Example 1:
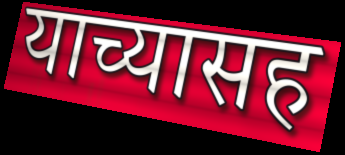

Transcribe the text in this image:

याच्यासह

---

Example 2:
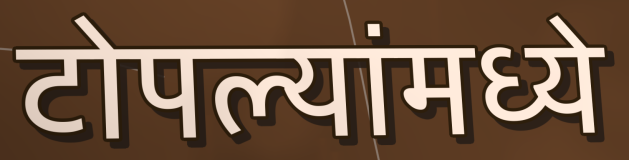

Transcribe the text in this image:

टोपल्यांमध्ये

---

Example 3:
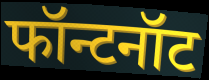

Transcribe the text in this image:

फॉन्टनॉट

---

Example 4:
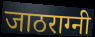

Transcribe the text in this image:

जाठराग्नी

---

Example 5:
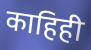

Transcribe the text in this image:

काहिही